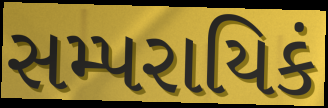
સમ્પરાયિકં